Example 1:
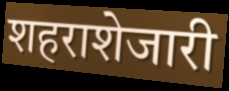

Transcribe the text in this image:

शहराशेजारी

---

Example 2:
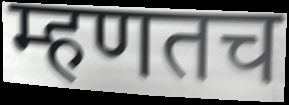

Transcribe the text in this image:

म्हणतच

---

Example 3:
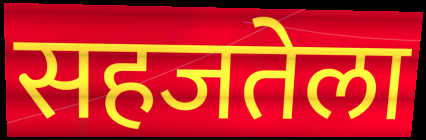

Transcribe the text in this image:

सहजतेला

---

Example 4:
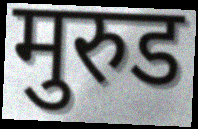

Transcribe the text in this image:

मुरुड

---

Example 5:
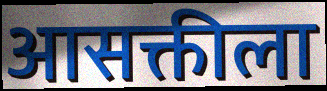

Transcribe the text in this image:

आसक्तीला